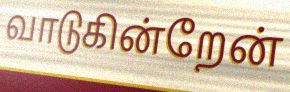
வாடுகின்றேன்